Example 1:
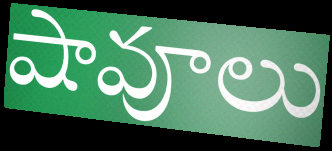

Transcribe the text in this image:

షావూలు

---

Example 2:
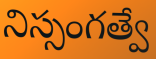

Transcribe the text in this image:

నిస్సంగత్వే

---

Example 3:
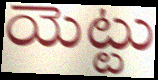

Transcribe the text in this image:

యెట్టు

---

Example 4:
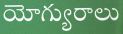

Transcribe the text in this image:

యోగ్యురాలు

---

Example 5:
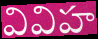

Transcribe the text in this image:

వివిహ